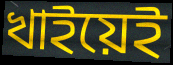
খাইয়েই